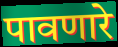
पावणारे